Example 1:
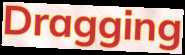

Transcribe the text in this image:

Dragging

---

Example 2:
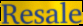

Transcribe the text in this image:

Resale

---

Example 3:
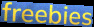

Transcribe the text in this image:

freebies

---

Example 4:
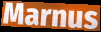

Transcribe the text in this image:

Marnus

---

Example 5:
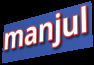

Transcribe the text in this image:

manjul